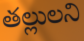
తల్లులని